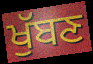
ਖੁੱਬਣ